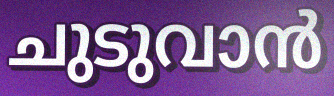
ചുടുവാൻ